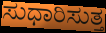
ಸುಧಾರಿಸುತ್ತ